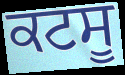
ਕਟਸੂ